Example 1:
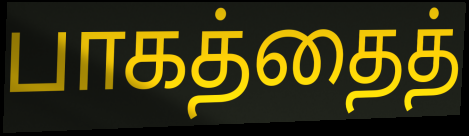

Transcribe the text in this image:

பாகத்தைத்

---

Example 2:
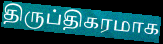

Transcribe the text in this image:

திருப்திகரமாக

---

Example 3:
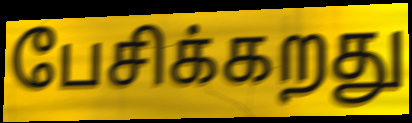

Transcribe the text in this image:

பேசிக்கறது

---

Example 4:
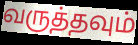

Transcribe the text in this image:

வருத்தவும்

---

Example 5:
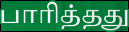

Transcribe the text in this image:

பாரித்தது